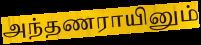
அந்தணராயினும்